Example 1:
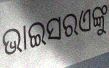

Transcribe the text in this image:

ଭାଇସରଏଙ୍କୁ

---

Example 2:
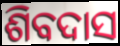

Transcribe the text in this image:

ଶିବଦାସ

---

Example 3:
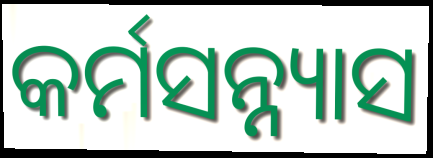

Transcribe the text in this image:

କର୍ମସନ୍ନ୍ୟାସ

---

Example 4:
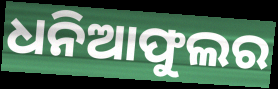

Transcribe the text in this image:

ଧନିଆଫୁଲର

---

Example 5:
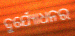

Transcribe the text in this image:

ଦୁର୍ଯ୍ୟୋଧନର